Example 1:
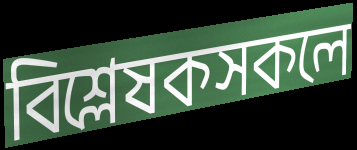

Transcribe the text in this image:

বিশ্লেষকসকলে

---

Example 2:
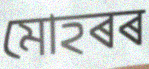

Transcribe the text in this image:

মোহৰৰ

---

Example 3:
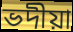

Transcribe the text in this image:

ভদীয়া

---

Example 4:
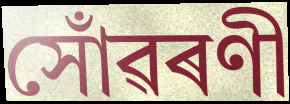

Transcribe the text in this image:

সোঁৱৰণী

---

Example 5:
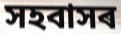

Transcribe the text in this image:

সহবাসৰ